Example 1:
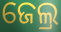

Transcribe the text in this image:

ଜେଲ୍ର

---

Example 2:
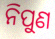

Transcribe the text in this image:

ନିପୁଣ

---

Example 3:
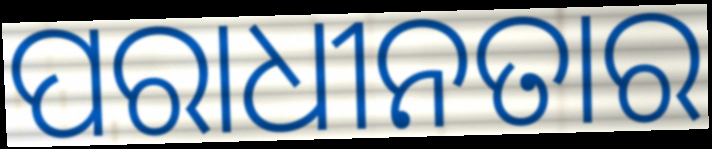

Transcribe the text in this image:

ପରାଧୀନତାର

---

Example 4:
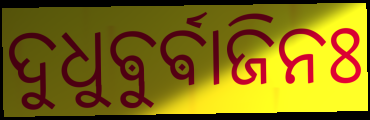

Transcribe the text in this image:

ଦୁଧୁଵୁର୍ଵାଜିନଃ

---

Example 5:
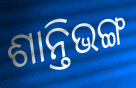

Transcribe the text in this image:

ଶାନ୍ତିଭଙ୍ଗ